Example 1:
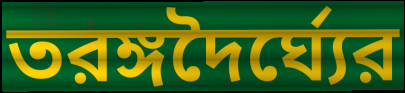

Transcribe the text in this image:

তরঙ্গদৈর্ঘ্যের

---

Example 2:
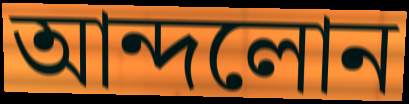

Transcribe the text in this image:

আন্দলোন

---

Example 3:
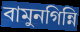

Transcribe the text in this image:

বামুনগিন্নি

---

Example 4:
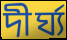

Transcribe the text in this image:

দীর্ঘ্য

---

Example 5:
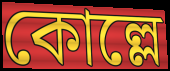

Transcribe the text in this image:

কোল্লে